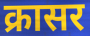
क्रासर